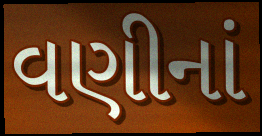
વણીનાં